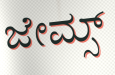
ಜೇಮ್ಸ್